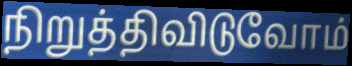
நிறுத்திவிடுவோம்